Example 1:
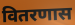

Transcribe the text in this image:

वितरणास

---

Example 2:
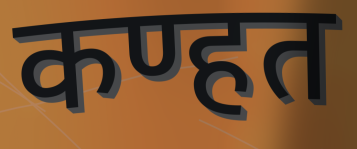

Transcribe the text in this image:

कण्हत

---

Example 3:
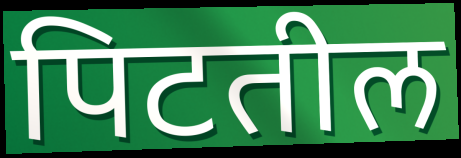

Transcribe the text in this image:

पिटतील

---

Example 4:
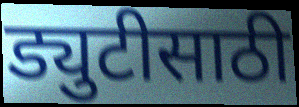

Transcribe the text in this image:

ड्युटीसाठी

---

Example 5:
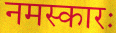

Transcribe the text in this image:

नमस्कारः